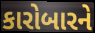
કારોબારને